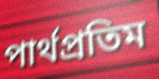
পার্থপ্রতিম